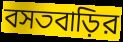
বসতবাড়ির